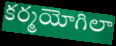
కర్మయోగిలా